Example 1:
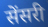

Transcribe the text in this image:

सेंसरी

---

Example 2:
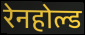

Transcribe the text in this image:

रेनहोल्ड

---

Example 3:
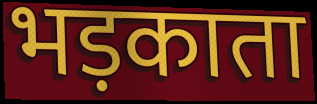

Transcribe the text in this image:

भड़काता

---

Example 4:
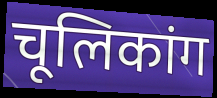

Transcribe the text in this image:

चूलिकांग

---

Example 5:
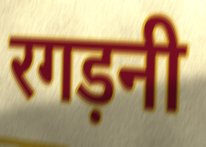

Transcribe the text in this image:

रगड़नी